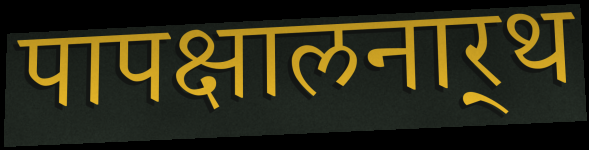
पापक्षालनार्थ